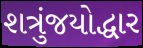
શત્રુંજયોદ્ધાર